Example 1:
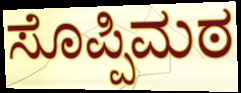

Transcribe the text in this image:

ಸೊಪ್ಪಿಮಠ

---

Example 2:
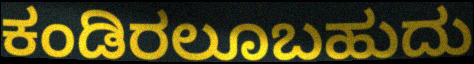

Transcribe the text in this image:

ಕಂಡಿರಲೂಬಹುದು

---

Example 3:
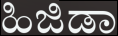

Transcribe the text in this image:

ಹಿಜಿಡಾ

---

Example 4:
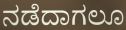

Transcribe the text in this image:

ನಡೆದಾಗಲೂ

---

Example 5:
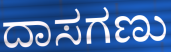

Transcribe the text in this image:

ದಾಸಗಣು